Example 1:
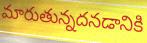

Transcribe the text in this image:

మారుతున్నదనడానికి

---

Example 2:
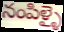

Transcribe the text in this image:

నంపిళ్ళై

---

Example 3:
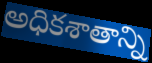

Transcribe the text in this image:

అధికశాతాన్ని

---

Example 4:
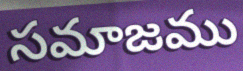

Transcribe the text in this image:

సమాజము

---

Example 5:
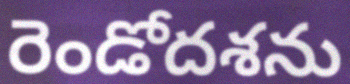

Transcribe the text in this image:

రెండోదశను